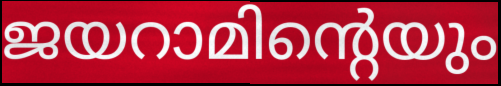
ജയറാമിന്റെയും